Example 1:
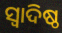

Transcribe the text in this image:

ସ୍ୱାଦିଷ୍ଠ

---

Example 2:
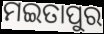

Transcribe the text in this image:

ମଇତାପୁର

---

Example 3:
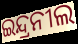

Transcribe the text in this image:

ଇନ୍ଦ୍ରନୀଲ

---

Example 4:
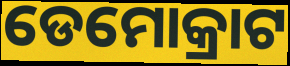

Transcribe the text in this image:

ଡେମୋକ୍ରାଟ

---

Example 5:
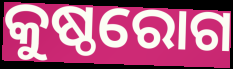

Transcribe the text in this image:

କୁଷ୍ଠରୋଗ